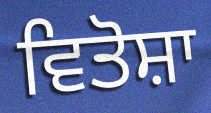
ਵਿਤੋਸ਼ਾ